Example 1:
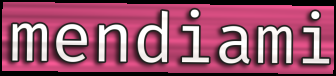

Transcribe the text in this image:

mendiami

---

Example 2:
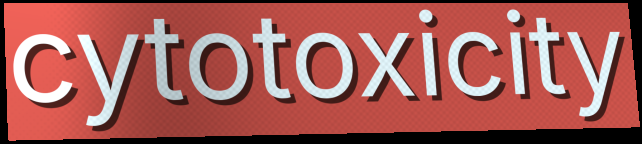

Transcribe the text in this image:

cytotoxicity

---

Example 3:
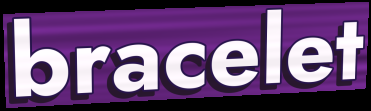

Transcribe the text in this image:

bracelet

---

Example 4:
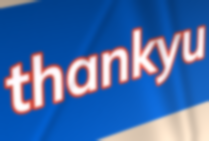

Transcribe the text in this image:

thankyu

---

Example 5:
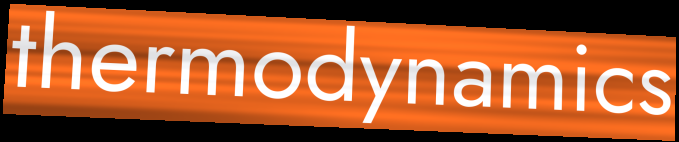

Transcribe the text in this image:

thermodynamics